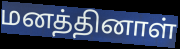
மனத்தினாள்